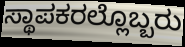
ಸ್ಥಾಪಕರಲ್ಲೊಬ್ಬರು